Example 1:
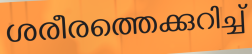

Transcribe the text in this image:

ശരീരത്തെക്കുറിച്ച്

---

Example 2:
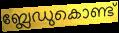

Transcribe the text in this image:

ബ്ലേഡുകൊണ്ട്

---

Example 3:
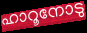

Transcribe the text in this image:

ഹാറൂനോടു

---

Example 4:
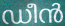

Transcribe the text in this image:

ഡീൻ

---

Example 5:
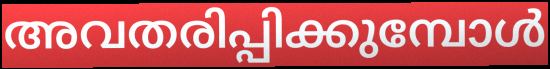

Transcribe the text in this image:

അവതരിപ്പിക്കുമ്പോൾ